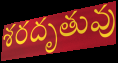
శరదృతువు